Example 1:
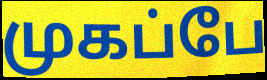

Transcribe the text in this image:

முகப்பே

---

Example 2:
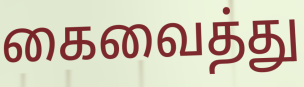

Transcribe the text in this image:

கைவைத்து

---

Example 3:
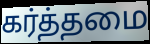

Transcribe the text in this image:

கர்த்தமை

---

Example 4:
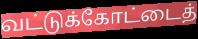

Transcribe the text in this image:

வட்டுக்கோட்டைத்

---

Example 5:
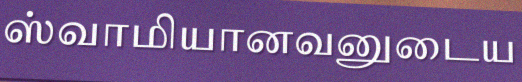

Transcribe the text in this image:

ஸ்வாமியானவனுடைய